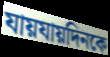
যায়যায়দিনকে